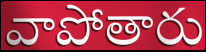
వాపోతారు